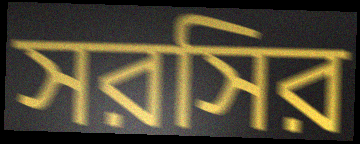
সরসির